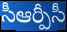
సీఆర్పీసీ